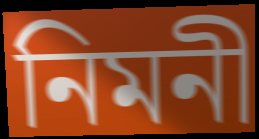
নিমনী